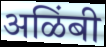
अळिंबी